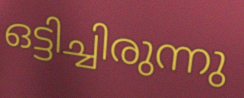
ഒട്ടിച്ചിരുന്നു